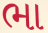
ભા